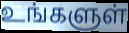
உங்களுள்